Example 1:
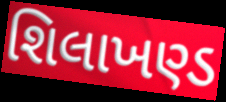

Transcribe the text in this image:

શિલાખણ્ડ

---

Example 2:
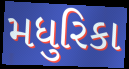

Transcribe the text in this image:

મધુરિકા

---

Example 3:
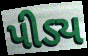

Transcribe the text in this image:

પીડ્ય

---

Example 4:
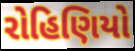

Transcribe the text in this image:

રોહિણિયો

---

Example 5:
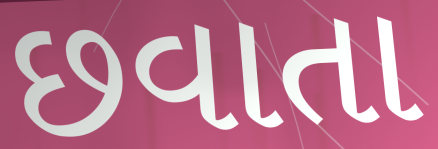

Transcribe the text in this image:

છવાતા